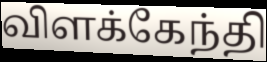
விளக்கேந்தி